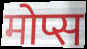
मोप्स